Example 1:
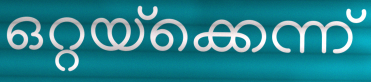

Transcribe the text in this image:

ഒറ്റയ്‌ക്കെന്ന്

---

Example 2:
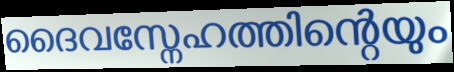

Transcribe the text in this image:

ദൈവസ്നേഹത്തിന്റെയും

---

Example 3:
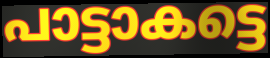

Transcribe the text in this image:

പാട്ടാകട്ടെ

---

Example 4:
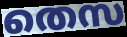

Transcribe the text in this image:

തെസ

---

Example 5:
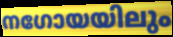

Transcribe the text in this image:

നഗോയയിലും